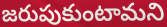
జరుపుకుంటామని